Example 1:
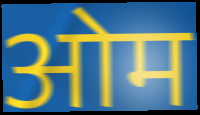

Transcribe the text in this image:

ओम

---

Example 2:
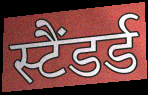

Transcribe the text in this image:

स्टैंडर्ड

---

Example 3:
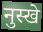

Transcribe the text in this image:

नुस्खे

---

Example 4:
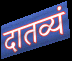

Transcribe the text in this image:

दातव्यं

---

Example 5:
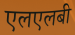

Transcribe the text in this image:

एलएलबी